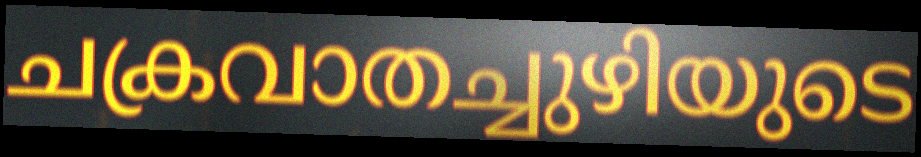
ചക്രവാതച്ചുഴിയുടെ